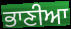
ਭਾਣੀਆ